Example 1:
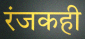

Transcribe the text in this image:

रंजकही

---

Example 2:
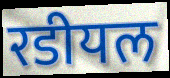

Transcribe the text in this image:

रडीयल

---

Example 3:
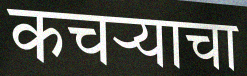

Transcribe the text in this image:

कचऱ्याचा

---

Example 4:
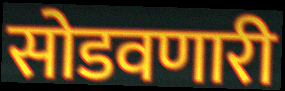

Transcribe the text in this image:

सोडवणारी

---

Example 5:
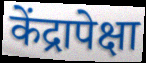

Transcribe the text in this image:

केंद्रापेक्षा